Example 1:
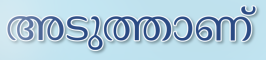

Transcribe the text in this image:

അടുത്താണ്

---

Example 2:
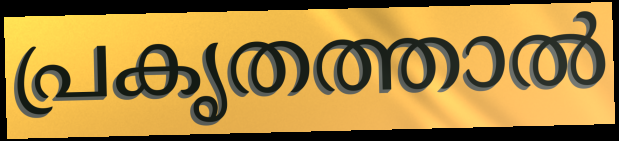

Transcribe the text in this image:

പ്രകൃതത്താൽ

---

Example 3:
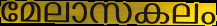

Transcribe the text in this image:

മേലാസകലം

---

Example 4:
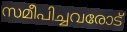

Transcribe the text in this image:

സമീപിച്ചവരോട്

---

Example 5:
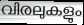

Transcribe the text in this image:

വിരലുകളും